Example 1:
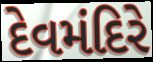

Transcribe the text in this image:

દેવમંદિરે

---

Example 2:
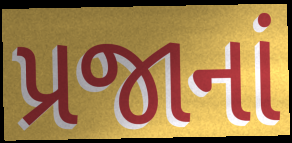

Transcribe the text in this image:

પ્રજાનાં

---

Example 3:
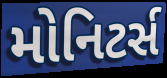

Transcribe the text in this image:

મોનિટર્સ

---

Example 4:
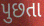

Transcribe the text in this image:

પુછતા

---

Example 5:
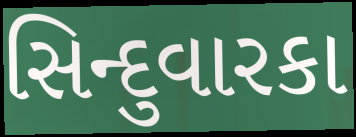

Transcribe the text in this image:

સિન્દુવારકા